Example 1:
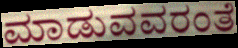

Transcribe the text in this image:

ಮಾಡುವವರಂತೆ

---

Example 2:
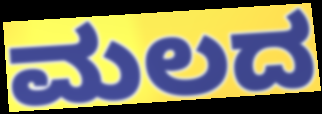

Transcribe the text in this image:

ಮಲದ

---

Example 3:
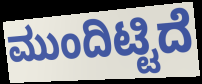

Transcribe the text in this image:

ಮುಂದಿಟ್ಟಿದೆ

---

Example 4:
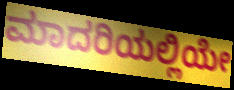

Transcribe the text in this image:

ಮಾದರಿಯಲ್ಲಿಯೇ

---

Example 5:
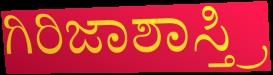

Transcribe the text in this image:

ಗಿರಿಜಾಶಾಸ್ತ್ರಿ